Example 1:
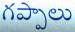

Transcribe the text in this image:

గప్పాలు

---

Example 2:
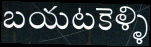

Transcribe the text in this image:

బయటకెళ్ళి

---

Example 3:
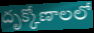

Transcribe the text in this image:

దృక్కోణాలలో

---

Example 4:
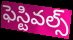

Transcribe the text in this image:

ఫెస్టివల్స్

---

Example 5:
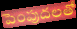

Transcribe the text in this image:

పెంపుదలతో